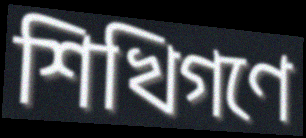
শিখিগণে